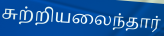
சுற்றியலைந்தார்